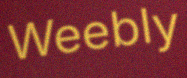
Weebly